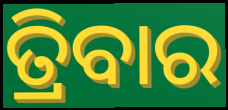
ତ୍ରିବାର